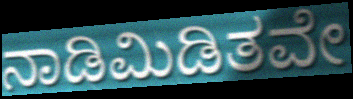
ನಾಡಿಮಿಡಿತವೇ